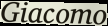
Giacomo